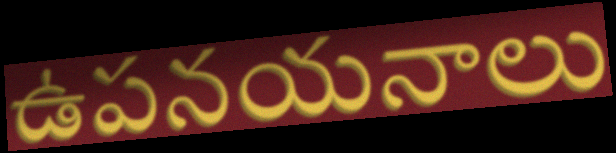
ఉపనయనాలు